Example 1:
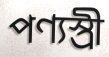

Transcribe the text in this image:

পণ্যস্ত্রী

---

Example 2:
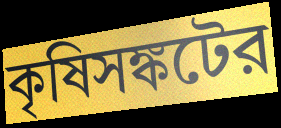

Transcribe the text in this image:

কৃষিসঙ্কটের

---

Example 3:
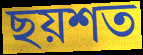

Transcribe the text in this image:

ছয়শত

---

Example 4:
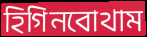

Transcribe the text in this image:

হিগিনবোথাম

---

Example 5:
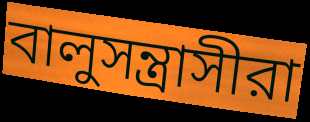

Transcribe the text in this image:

বালুসন্ত্রাসীরা